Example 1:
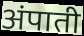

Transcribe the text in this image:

अंपाती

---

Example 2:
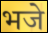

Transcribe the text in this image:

भजे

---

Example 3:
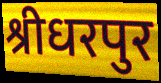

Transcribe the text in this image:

श्रीधरपुर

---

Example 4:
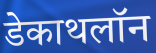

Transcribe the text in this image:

डेकाथलॉन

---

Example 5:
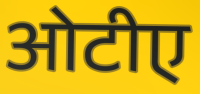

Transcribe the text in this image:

ओटीए